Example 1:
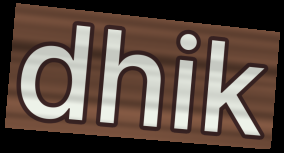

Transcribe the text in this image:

dhik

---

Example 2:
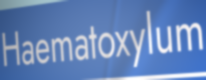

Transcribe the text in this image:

Haematoxylum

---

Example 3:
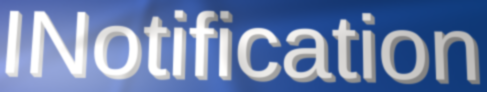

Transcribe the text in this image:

INotification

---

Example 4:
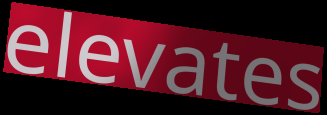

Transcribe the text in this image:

elevates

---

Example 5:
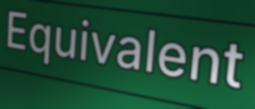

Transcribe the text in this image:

Equivalent